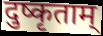
दुष्कृताम्